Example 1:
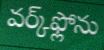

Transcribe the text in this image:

వర్క్‌ఫ్లోను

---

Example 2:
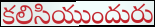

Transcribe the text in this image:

కలిసియుందురు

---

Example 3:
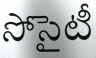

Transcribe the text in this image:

సోసైటీ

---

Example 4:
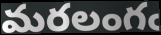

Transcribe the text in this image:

మరలంగఁ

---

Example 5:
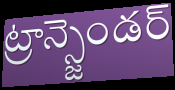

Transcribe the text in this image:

ట్రాన్స్జెండర్